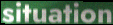
situation